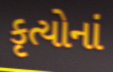
કૃત્યોનાં